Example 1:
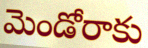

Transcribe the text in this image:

మెండోరాకు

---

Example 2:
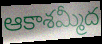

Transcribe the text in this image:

ఆకాశమ్మీద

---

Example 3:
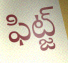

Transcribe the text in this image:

ఫిట్జ్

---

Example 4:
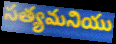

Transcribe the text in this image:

సత్యమనియు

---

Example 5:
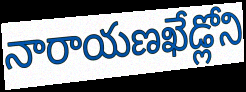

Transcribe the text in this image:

నారాయణఖేడ్లోని